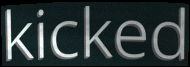
kicked